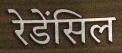
रेडेंसिल